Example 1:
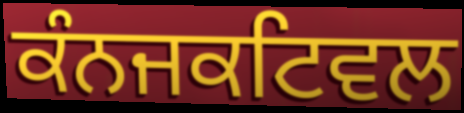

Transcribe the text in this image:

ਕੰਨਜਕਟਿਵਲ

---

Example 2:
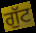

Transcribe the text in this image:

ਗੁੱਟ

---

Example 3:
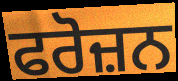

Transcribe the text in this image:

ਫਰੋਜ਼ਨ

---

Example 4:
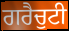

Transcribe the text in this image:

ਗਰੈਚੁਟੀ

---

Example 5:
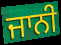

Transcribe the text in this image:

ਜਾਨੀ